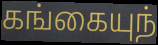
கங்கையுந்